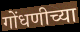
गोंधणीच्या